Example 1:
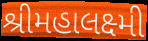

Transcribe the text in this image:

શ્રીમહાલક્ષ્મી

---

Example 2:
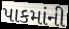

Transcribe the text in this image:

પાકમાંની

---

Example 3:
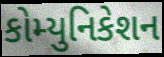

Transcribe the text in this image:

કોમ્યુનિકેશન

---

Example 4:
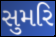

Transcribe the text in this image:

સુમરિ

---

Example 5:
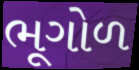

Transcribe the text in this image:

ભૂગોળ